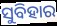
ସୁବିହାର